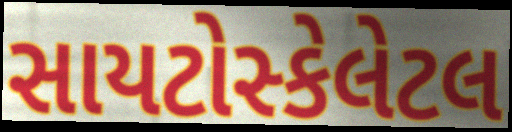
સાયટોસ્કેલેટલ